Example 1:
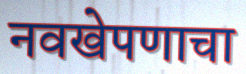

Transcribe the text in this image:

नवखेपणाचा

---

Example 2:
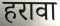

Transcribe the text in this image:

हरावा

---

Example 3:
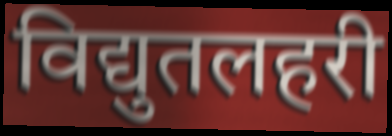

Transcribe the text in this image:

विद्युतलहरी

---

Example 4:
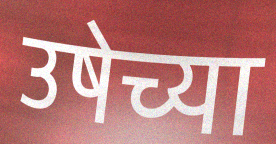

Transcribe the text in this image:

उषेच्या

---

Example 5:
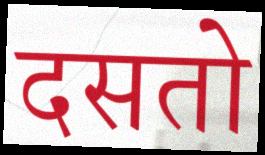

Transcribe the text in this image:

दसतो